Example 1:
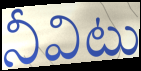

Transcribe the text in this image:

నీవిటు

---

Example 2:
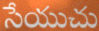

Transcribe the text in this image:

సేయుచు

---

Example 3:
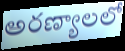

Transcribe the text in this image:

అరణ్యాలలో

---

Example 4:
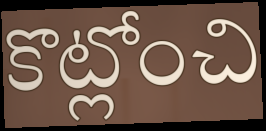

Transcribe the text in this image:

కొట్లోంచి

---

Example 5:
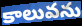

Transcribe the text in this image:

కాలువను